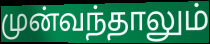
முன்வந்தாலும்